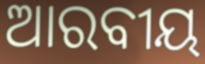
ଆରବୀୟ